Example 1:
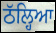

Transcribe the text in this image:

ਠੱਲ੍ਹਿਆ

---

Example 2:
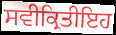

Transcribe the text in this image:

ਸਵੀਕ੍ਰਿਤੀਇਹ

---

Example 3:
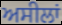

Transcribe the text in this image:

ਅਸੀਲਾਂ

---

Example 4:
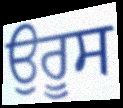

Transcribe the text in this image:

ਉਰੂਸ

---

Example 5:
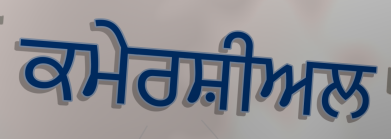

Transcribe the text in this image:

ਕਮੇਰਸ਼ੀਅਲ